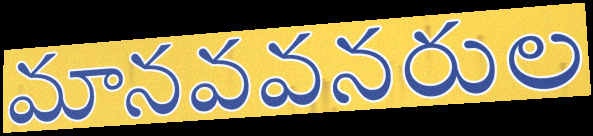
మానవవనరుల